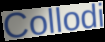
Collodi